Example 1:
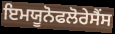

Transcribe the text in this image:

ਇਮਯੂਨੋਫਲੋਰੇਸੈਂਸ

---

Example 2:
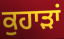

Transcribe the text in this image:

ਕੁਹਾੜਾਂ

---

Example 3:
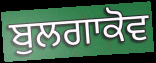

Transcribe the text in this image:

ਬੁਲਗਾਕੋਵ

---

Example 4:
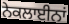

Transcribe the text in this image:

ਨੇਕਲਾਈਨਾਂ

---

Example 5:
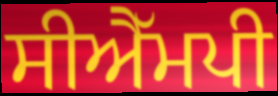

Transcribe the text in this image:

ਸੀਐੱਮਪੀ